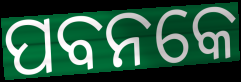
ପବନକେ